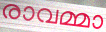
രാവമ്മാ